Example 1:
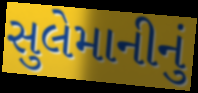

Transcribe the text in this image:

સુલેમાનીનું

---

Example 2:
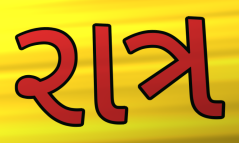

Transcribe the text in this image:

રાત્ર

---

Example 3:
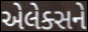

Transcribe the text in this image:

એલેક્સને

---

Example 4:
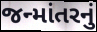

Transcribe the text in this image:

જન્માંતરનું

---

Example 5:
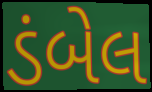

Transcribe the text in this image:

ડંબેલ